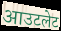
आउटलेट